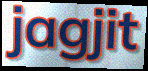
jagjit